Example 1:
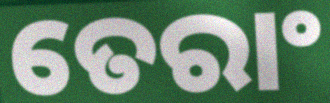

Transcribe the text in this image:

ତେରାଂ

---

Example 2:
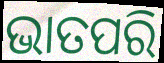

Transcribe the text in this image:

ଭାତପରି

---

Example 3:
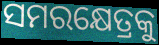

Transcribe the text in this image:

ସମରକ୍ଷେତ୍ରକୁ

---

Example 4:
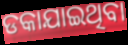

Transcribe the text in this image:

ଡକାଯାଇଥିବା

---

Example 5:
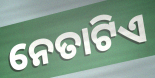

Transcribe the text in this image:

ନେତାଟିଏ